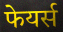
फेयर्स